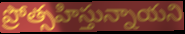
ప్రోత్సహిస్తున్నాయని